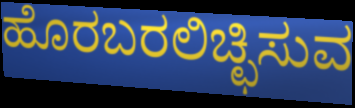
ಹೊರಬರಲಿಚ್ಛಿಸುವ